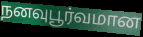
நனவுபூர்வமான